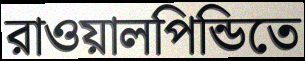
রাওয়ালপিন্ডিতে